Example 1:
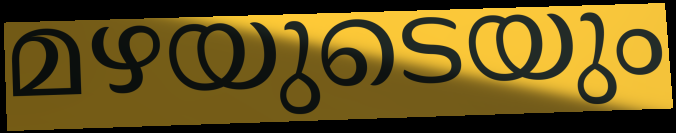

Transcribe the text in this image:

മഴയുടെയും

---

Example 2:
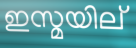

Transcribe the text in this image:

ഇസ്മയില്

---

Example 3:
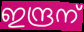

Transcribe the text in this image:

ഇന്ദ്രന്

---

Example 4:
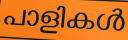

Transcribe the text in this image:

പാളികൾ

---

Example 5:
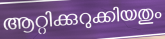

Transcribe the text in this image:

ആറ്റിക്കുറുക്കിയതും